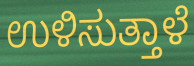
ಉಳಿಸುತ್ತಾಳೆ